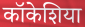
कॉकेशिया